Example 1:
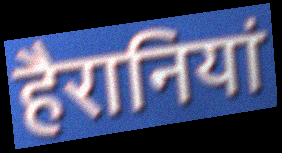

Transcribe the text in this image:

हैरानियां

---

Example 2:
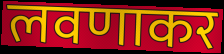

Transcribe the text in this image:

लवणाकर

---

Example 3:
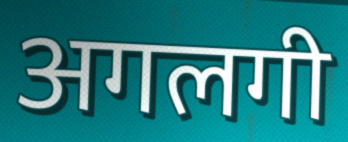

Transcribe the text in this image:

अगलगी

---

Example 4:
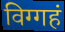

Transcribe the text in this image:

विग्गहं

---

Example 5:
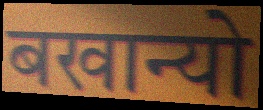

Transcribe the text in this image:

बखान्यो